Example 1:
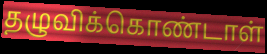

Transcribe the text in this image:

தழுவிக்கொண்டாள்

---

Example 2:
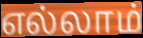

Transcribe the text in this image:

எல்லாம்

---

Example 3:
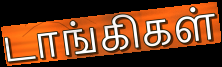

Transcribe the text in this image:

டாங்கிகள்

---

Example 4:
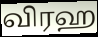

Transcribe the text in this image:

விரஹ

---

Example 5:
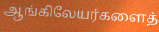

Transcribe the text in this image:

ஆங்கிலேயர்களைத்